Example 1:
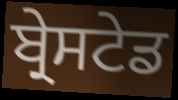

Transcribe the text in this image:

ਬ੍ਰੇਸਟੇਡ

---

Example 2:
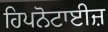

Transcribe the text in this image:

ਹਿਪਨੋਟਾਈਜ਼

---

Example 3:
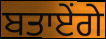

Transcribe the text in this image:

ਬਤਾਏਂਗੇ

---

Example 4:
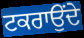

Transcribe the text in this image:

ਟਕਰਾਉਂਦੇ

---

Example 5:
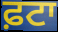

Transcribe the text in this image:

ਫ਼ਟਾ